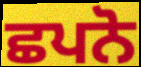
ਛਪਨੋ